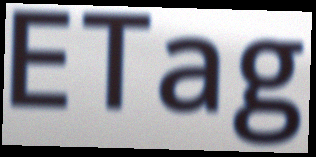
ETag